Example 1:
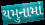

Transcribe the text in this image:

યમુનામાં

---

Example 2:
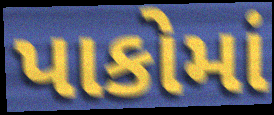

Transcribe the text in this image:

પાકોમાં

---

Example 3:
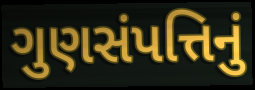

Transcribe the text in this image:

ગુણસંપત્તિનું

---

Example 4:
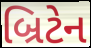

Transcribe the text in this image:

બ્રિટેન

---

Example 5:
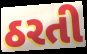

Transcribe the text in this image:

ઠરતી